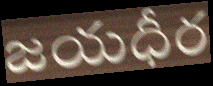
జయధీర